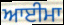
ਆਈਮਾ